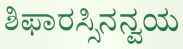
ಶಿಫಾರಸ್ಸಿನನ್ವಯ